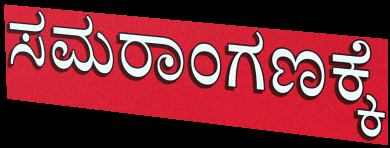
ಸಮರಾಂಗಣಕ್ಕೆ